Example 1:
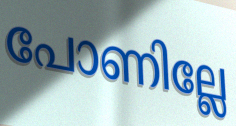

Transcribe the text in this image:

പോണില്ലേ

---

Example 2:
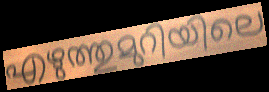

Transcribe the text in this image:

എഴുത്തുമുറിയിലെ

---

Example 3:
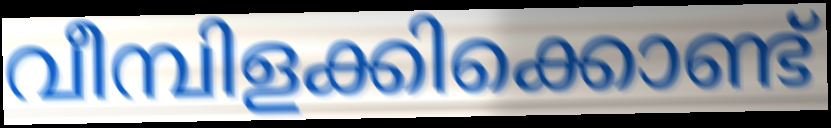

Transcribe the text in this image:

വീമ്പിളക്കിക്കൊണ്ട്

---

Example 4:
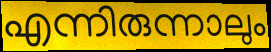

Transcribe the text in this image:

എന്നിരുന്നാലും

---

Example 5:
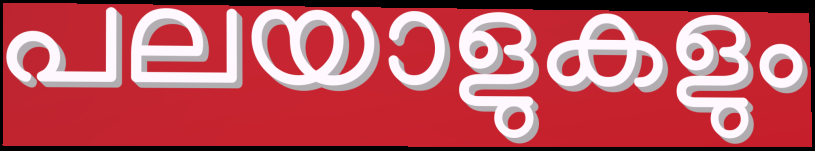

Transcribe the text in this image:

പലയാളുകളും